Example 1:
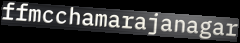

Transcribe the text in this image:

ffmcchamarajanagar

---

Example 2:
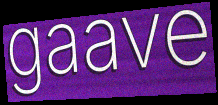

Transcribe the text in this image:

gaave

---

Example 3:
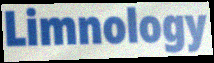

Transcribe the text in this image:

Limnology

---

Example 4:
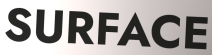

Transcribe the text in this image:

SURFACE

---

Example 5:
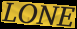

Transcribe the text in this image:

LONE